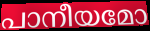
പാനീയമോ